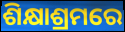
ଶିକ୍ଷାଶ୍ରମରେ